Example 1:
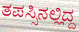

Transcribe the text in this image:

ತಪಸ್ಸಿನಲ್ಲಿದ್ದ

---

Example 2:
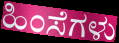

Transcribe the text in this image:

ಹಿಂಸೆಗಳು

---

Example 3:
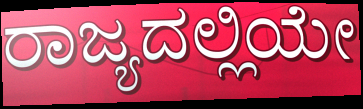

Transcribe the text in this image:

ರಾಜ್ಯದಲ್ಲಿಯೇ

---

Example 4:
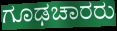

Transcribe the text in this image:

ಗೂಢಚಾರರು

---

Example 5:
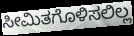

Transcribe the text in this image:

ಸೀಮಿತಗೊಳಿಸಲಿಲ್ಲ